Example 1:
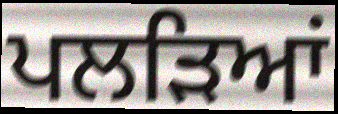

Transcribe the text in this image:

ਪਲੜਿਆਂ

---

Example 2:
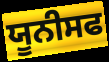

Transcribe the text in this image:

ਯੂਨੀਸਫ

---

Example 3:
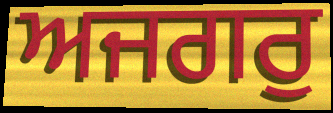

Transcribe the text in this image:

ਅਜਗਰੁ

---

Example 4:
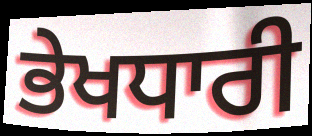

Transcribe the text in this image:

ਭੇਖਧਾਰੀ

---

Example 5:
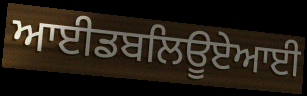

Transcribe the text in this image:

ਆਈਡਬਲਿਊਏਆਈ